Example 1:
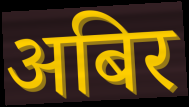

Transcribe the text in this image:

अबिर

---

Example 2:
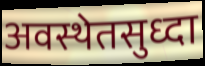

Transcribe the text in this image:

अवस्थेतसुध्दा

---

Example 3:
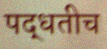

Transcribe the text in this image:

पद्धतीच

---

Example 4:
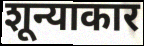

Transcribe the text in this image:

शून्याकार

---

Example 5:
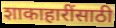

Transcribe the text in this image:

शाकाहारींसाठी